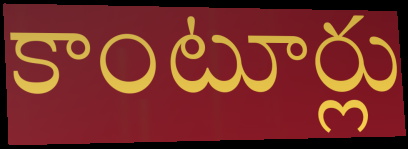
కాంటూర్లు